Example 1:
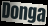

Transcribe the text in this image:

Donga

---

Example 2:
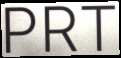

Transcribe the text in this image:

PRT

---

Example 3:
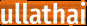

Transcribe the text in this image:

ullathai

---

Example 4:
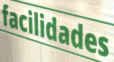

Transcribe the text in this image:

facilidades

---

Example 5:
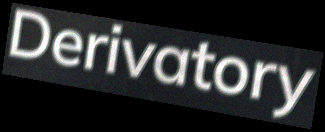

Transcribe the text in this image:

Derivatory